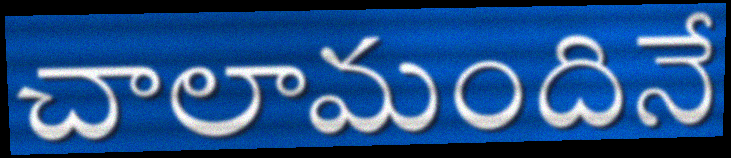
చాలామందినే